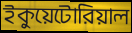
ইকুয়েটোরিয়াল